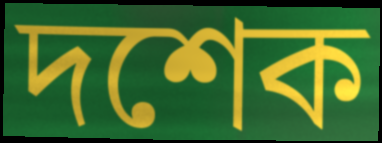
দশেক